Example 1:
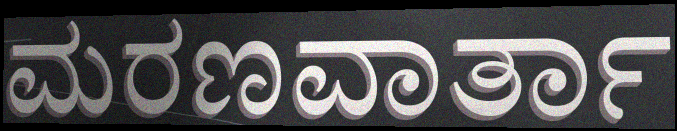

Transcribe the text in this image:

ಮರಣವಾರ್ತಾ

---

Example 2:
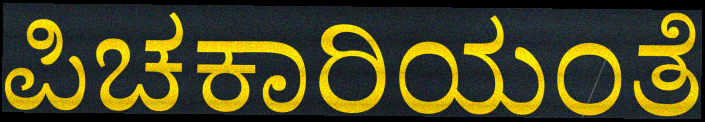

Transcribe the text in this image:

ಪಿಚಕಾರಿಯಂತೆ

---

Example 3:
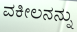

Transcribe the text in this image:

ವಕೀಲನನ್ನು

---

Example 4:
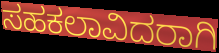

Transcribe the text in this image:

ಸಹಕಲಾವಿದರಾಗಿ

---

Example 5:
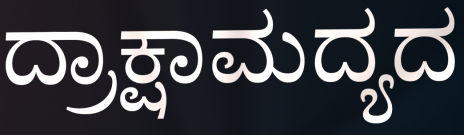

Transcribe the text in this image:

ದ್ರಾಕ್ಷಾಮದ್ಯದ